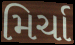
મિર્ચા